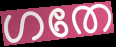
ഗതേ